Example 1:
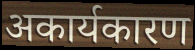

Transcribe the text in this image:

अकार्यकारण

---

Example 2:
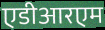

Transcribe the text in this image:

एडीआरएम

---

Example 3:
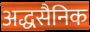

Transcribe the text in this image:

अद्धसैनिक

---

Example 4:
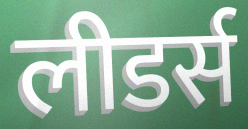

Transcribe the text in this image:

लीडर्स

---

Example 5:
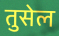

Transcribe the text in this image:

तुसेल